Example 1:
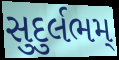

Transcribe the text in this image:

સુદુર્લભમ્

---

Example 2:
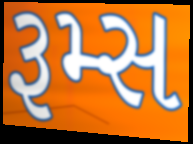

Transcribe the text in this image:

રૂમ્સ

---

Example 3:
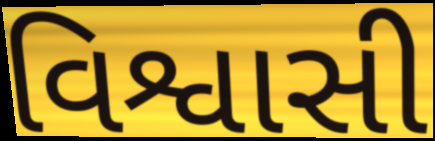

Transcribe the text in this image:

વિશ્વાસી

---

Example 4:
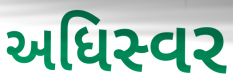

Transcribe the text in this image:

અધિસ્વર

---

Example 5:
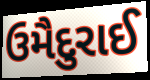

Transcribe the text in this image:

ઉમૈદુરાઈ